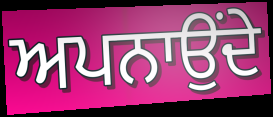
ਅਪਨਾਉਂਦੇ